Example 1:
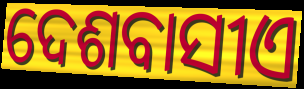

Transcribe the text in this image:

ଦେଶବାସୀଏ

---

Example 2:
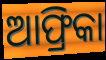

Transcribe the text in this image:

ଆଫ୍ରିକା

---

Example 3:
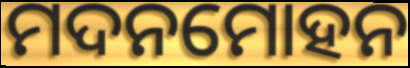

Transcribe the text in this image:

ମଦନମୋହନ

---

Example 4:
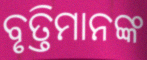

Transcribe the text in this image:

ବୃତ୍ତିମାନଙ୍କ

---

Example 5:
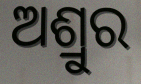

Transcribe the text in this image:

ଅଶ୍ରୁର